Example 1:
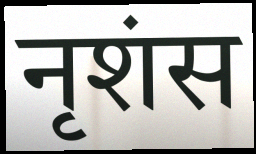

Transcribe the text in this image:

नृशंस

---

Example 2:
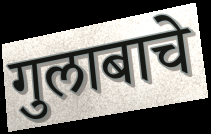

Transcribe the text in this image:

गुलाबाचे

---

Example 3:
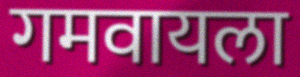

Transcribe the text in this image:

गमवायला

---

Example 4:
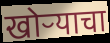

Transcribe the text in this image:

खोऱ्याचा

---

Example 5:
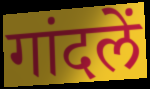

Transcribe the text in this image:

गांदलें